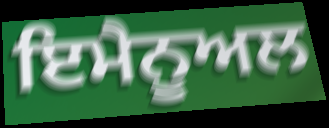
ਇਮੈਨੂਅਲ